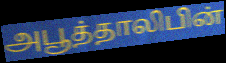
அபூத்தாலிபின்